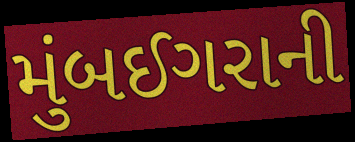
મુંબઈગરાની